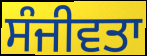
ਸੰਜੀਵਤਾ